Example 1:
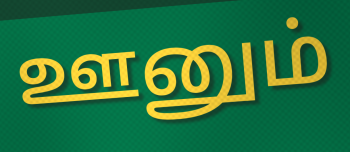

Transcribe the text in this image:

ஊனும்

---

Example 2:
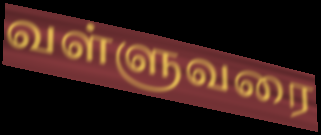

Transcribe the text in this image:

வள்ளுவரை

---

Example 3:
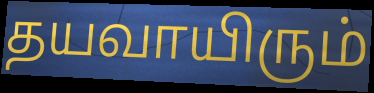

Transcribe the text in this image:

தயவாயிரும்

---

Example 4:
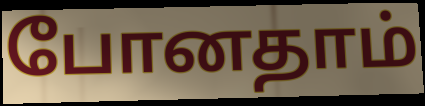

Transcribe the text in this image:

போனதாம்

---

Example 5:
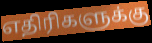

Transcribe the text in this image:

எதிரிகளுக்கு